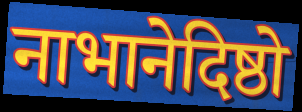
नाभानेदिष्ठो